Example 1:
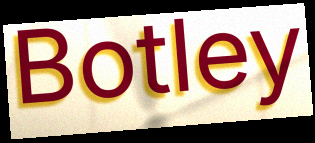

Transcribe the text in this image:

Botley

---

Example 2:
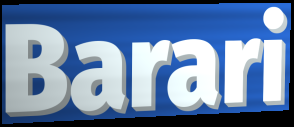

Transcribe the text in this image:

Barari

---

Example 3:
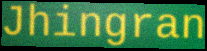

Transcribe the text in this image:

Jhingran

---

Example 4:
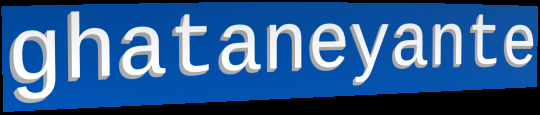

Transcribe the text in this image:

ghataneyante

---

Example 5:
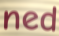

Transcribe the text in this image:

ned